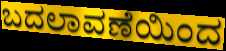
ಬದಲಾವಣೆಯಿಂದ